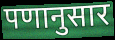
पणानुसार